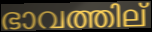
ഭാവത്തില്